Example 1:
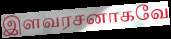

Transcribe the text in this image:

இளவரசனாகவே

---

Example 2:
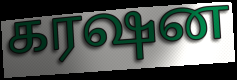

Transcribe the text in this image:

கரஷன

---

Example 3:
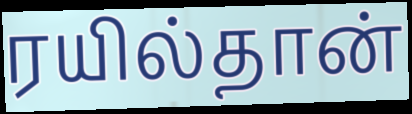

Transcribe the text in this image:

ரயில்தான்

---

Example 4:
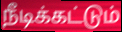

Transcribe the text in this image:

நீடிக்கட்டும்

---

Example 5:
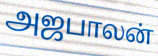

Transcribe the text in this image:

அஜபாலன்